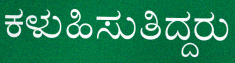
ಕಳುಹಿಸುತಿದ್ದರು